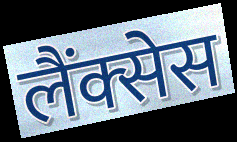
लैंक्‍सेस